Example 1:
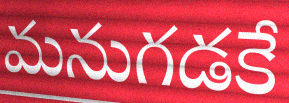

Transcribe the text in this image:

మనుగడకే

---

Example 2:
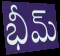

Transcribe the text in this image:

భీమ్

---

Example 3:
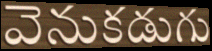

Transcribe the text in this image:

వెనుకడుగు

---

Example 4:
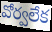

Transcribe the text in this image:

వోర్వలేక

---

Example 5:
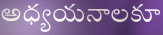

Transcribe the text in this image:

అధ్యయనాలకూ